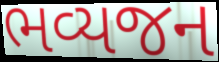
ભવ્યજન